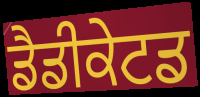
ਡੈਡੀਕੇਟਡ